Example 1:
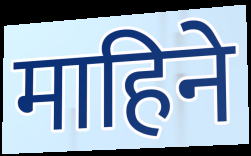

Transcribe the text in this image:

माहिने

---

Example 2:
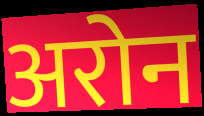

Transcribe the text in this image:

अरोन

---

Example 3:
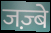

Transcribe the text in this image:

जज़्बे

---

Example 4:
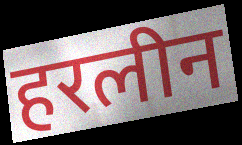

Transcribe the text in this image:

हरलीन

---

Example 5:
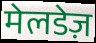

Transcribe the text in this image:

मेलडेज़